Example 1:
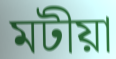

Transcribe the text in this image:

মটীয়া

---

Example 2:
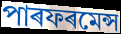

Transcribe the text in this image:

পাৰফৰমেন্স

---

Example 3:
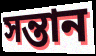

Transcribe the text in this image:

সন্তান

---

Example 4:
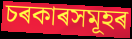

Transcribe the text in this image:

চৰকাৰসমূহৰ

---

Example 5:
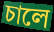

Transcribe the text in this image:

চালে